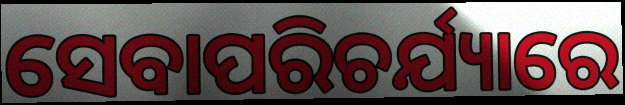
ସେବାପରିଚର୍ଯ୍ୟାରେ